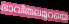
ഭാവിതലമുറയെ